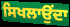
ਸਿਖਲਾਉਂਦਾ